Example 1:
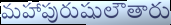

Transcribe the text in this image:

మహాపురుషులౌతారు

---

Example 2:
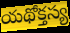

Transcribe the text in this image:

యథోక్తస్య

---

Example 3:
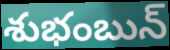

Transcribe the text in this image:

శుభంబున్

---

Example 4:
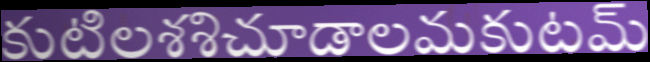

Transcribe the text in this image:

కుటిలశశిచూడాలమకుటమ్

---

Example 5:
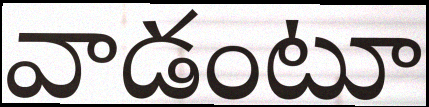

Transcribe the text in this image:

వాడంటూ